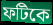
ফটিকে